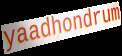
yaadhondrum